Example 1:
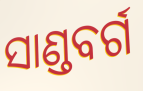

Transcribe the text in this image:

ସାଣ୍ଡବର୍ଗ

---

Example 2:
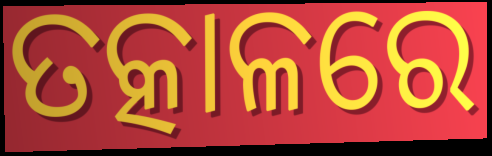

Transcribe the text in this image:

ତତ୍କାଳରେ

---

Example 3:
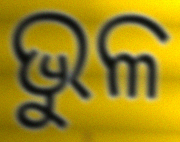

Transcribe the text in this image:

ଭୁଳ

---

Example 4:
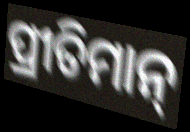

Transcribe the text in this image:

ପ୍ରୀତିମାନ୍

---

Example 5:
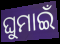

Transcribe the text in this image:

ଘୁମାଇଁ